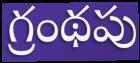
గ్రంథపు